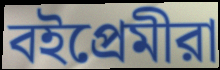
বইপ্রেমীরা